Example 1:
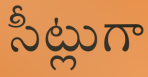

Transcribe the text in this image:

సీట్లుగా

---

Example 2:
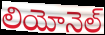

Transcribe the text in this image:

లియోనెల్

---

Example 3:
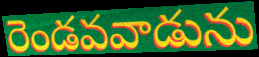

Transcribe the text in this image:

రెండవవాడును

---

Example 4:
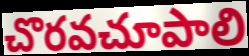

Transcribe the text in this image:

చొరవచూపాలి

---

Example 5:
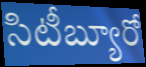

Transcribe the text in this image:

సిటీబ్యూరో